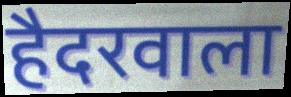
हैदरवाला